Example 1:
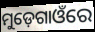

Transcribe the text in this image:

ମୁଡ଼େଗାଓଁରେ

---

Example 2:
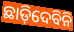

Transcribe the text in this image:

ଛାଡ଼ିଦେବିନି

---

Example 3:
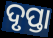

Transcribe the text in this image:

ଦୃପ୍ତା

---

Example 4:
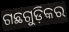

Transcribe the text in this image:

ଗଛଗୁଡ଼ିକର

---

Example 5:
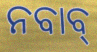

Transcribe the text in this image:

ନବାବ୍